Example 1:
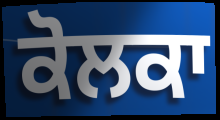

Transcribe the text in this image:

ਕੋਲਕਾ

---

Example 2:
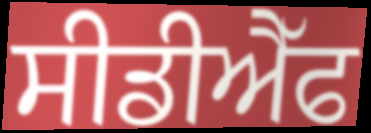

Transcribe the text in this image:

ਸੀਡੀਐੱਫ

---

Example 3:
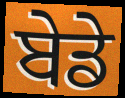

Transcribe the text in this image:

ਬੇਡੇ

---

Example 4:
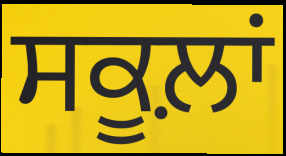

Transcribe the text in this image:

ਸਕੂਲ਼ਾਂ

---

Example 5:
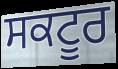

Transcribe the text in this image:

ਸਕਟੂਰ